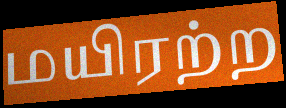
மயிரற்ற